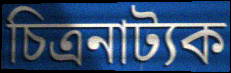
চিত্ৰনাট্যক